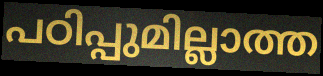
പഠിപ്പുമില്ലാത്ത